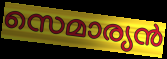
സെമാര്യൻ